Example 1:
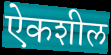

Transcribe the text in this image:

ऐकशील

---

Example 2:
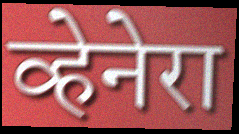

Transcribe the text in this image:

व्हेनेरा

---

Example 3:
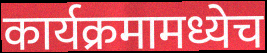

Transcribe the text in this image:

कार्यक्रमामध्येच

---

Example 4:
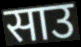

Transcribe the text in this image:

साउ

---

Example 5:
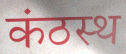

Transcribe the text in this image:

कंठस्थ